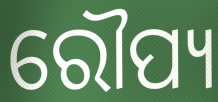
ରୌପ୍ୟ